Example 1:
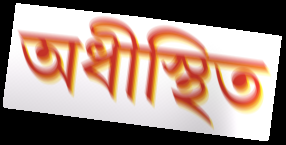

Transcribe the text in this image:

অধীস্থিত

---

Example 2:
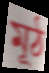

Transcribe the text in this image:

মূঠ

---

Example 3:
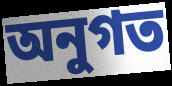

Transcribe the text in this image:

অনুগত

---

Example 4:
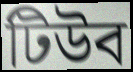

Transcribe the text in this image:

টিউব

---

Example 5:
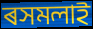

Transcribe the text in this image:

ৰসমলাই